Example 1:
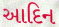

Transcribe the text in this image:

આદિન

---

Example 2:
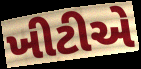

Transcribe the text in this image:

ખીટીએ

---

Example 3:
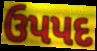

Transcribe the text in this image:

ઉપપદ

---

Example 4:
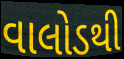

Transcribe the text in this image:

વાલોડથી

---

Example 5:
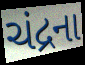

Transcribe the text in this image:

ચંદ્રના